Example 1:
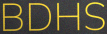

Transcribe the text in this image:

BDHS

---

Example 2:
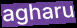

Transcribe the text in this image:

agharu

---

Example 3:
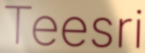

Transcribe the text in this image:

Teesri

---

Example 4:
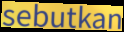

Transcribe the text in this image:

sebutkan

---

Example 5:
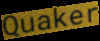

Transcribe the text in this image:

Quaker